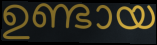
ഉണ്ടായ